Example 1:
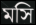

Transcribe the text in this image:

মসি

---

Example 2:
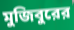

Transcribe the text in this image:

মুজিবুরের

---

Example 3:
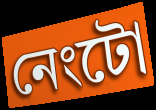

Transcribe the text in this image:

নেংটো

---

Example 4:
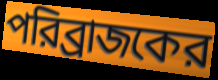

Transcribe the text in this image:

পরিব্রাজকের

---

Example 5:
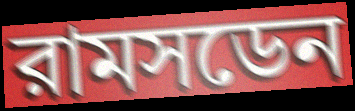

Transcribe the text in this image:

রামসডেন